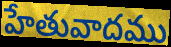
హేతువాదము